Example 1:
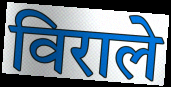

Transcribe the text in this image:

विराले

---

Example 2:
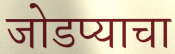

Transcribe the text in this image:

जोडप्याचा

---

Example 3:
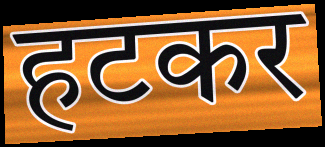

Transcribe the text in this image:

हटकर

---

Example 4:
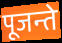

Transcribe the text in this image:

पूजन्ते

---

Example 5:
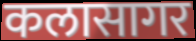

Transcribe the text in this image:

कलासागर